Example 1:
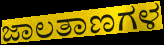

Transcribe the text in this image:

ಜಾಲತಾಣಗಳ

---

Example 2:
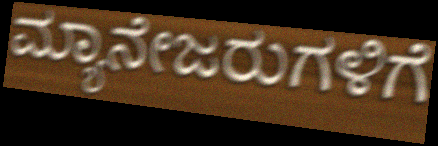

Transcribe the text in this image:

ಮ್ಯಾನೇಜರುಗಳಿಗೆ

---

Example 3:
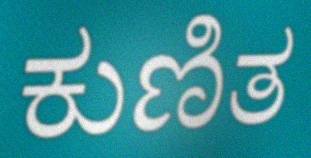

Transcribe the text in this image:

ಕುಣಿತ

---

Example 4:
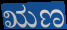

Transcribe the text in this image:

ಋಣ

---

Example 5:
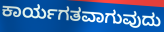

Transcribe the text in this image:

ಕಾರ್ಯಗತವಾಗುವುದು